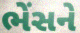
ભેંસને